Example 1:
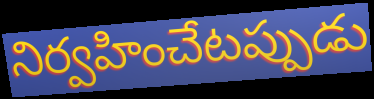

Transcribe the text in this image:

నిర్వహించేటప్పుడు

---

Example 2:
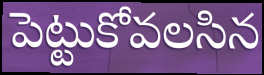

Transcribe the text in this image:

పెట్టుకోవలసిన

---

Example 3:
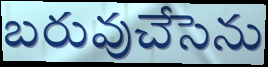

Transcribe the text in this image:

బరువుచేసెను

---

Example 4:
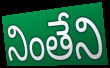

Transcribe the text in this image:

నింతేని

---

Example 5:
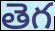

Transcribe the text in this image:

తెగ